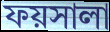
ফয়সালা